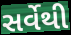
સર્વેથી